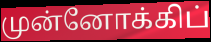
முன்னோக்கிப்